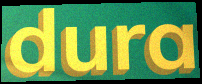
dura